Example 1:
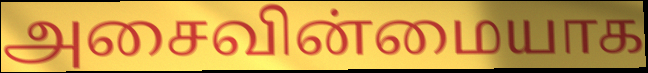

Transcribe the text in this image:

அசைவின்மையாக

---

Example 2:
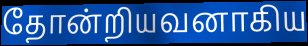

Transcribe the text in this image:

தோன்றியவனாகிய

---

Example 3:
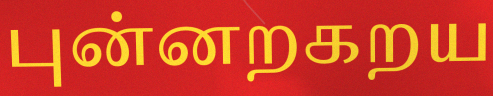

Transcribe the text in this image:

புன்னறகறய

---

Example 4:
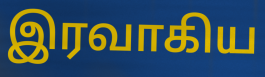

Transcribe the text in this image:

இரவாகிய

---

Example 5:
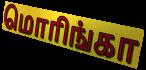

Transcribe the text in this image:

மொரிங்கா